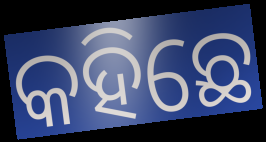
କହିଛେ